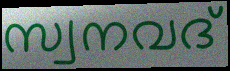
സ്വനവദ്